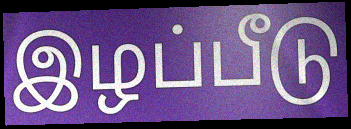
இழப்பீடு